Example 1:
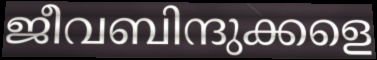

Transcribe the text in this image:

ജീവബിന്ദുക്കളെ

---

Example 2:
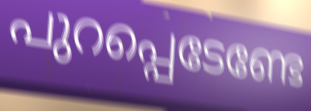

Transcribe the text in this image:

പുറപ്പെടേണ്ടേ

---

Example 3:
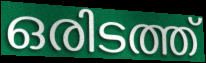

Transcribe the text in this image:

ഒരിടത്ത്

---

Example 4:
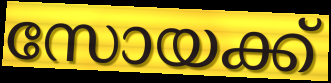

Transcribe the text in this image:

സോയക്ക്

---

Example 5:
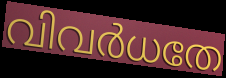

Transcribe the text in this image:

വിവർധതേ